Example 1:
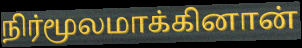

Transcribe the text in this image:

நிர்மூலமாக்கினான்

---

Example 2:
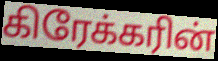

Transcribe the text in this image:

கிரேக்கரின்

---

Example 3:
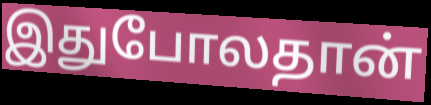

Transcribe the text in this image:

இதுபோலதான்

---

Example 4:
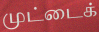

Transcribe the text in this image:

முட்டைக்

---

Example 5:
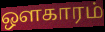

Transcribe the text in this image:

ஔகாரம்